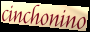
cinchonino